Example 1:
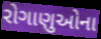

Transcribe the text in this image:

રોગાણુઓના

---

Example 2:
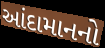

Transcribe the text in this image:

આંદામાનનો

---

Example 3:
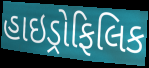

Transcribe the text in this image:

હાઇડ્રોફિલિક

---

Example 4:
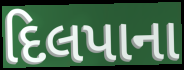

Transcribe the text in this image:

દિલપાના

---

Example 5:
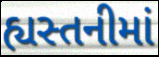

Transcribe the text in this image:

હ્યસ્તનીમાં